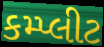
કમ્પ્લીટ